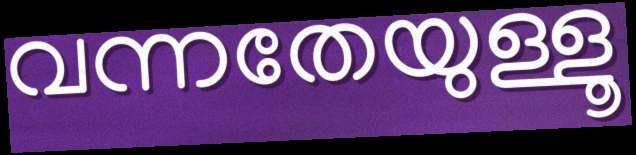
വന്നതേയുള്ളൂ